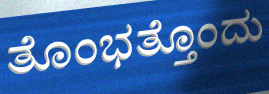
ತೊಂಭತ್ತೊಂದು